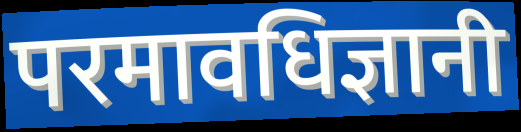
परमावधिज्ञानी